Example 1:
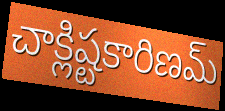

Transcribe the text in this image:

చాక్లిష్టకారిణమ్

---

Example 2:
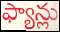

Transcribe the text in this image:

ఫ్యాన్లు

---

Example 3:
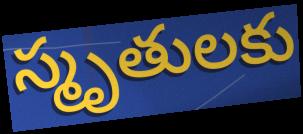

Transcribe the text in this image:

స్మృతులకు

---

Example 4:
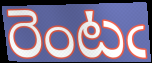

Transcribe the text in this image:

రెంటఁ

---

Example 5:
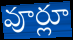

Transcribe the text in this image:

వూర్లూ